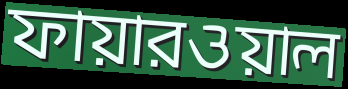
ফায়ারওয়াল